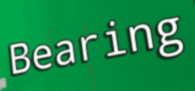
Bearing